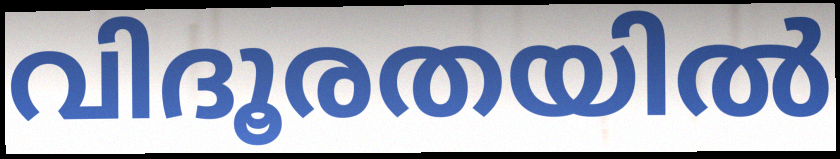
വിദൂരതയിൽ